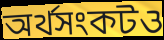
অর্থসংকটও